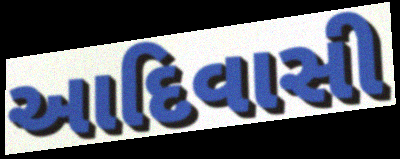
આદિવાસી